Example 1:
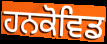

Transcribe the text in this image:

ਹਨਕੋਵਿਡ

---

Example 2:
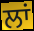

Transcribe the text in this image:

ਲਾਂ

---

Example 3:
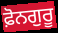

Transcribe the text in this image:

ਫ਼ੋਨਗੁਰੂ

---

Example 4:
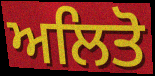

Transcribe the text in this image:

ਅਲਿਤੋ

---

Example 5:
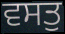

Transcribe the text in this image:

ਵਸਤੁ